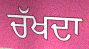
ਚੱਖਦਾ